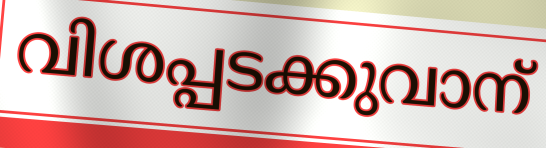
വിശപ്പടക്കുവാന്